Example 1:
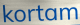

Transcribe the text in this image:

kortam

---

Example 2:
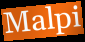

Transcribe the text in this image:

Malpi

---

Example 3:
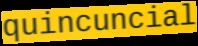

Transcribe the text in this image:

quincuncial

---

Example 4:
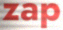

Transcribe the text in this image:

zap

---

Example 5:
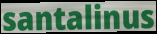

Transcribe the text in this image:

santalinus